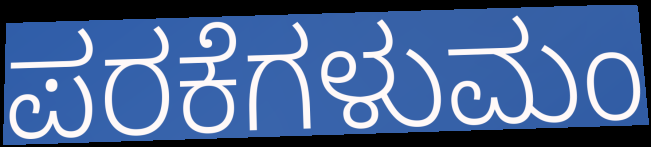
ಪರಕೆಗಳುಮಂ